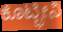
ಕೊಟ್ಟೇನಿ